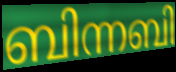
ബിന്നബി